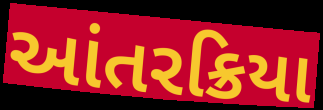
આંતરક્રિયા